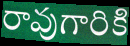
రావుగారికి